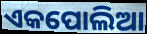
ଏକପୋଲିଆ